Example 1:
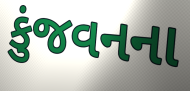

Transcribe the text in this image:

કુંજવનના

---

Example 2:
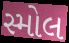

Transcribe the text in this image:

સ્મોલ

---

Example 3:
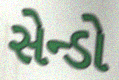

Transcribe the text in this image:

સેન્ડો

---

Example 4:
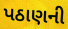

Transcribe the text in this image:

પઠાણની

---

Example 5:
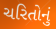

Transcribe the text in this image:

ચરિતોનું